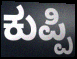
ಕುಪ್ಪಿ